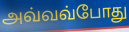
அவ்வவ்போது